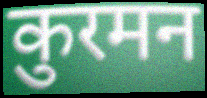
कुरमन